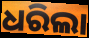
ଧରିଲା